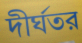
দীর্ঘতর